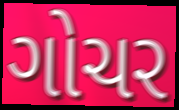
ગોચર